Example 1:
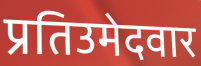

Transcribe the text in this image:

प्रतिउमेदवार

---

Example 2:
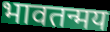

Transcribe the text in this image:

भावतन्मय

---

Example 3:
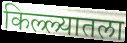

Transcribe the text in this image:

किल्ल्यातला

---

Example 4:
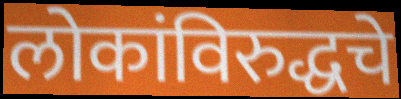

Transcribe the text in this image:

लोकांविरुद्धचे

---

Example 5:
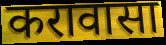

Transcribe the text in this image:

करावासा